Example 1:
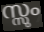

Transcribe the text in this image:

സ്സും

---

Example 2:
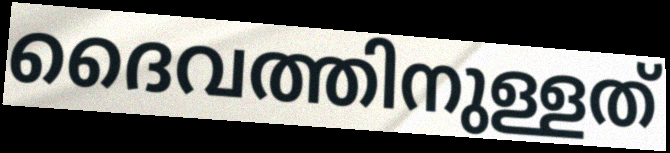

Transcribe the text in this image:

ദൈവത്തിനുള്ളത്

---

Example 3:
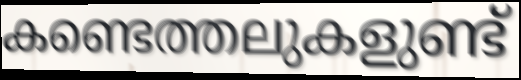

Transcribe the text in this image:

കണ്ടെത്തലുകളുണ്ട്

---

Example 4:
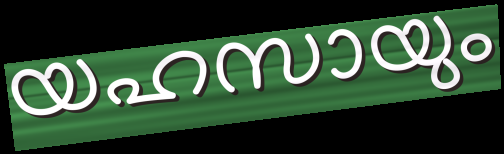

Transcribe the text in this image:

യഹസായും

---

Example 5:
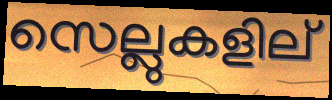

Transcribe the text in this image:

സെല്ലുകളില്